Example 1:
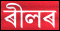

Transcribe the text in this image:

ৰীলৰ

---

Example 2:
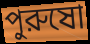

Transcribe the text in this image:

পুৰুষো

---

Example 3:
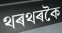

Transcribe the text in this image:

থৰথৰকৈ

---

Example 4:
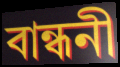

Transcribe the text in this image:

বান্ধনী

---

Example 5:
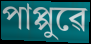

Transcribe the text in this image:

পাপ্পুৱে